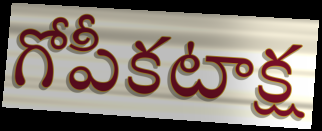
గోపీకటాక్ష